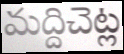
మద్దిచెట్ల